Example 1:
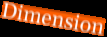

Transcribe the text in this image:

Dimension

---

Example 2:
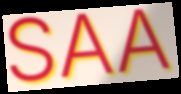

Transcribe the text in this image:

SAA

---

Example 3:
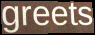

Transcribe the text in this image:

greets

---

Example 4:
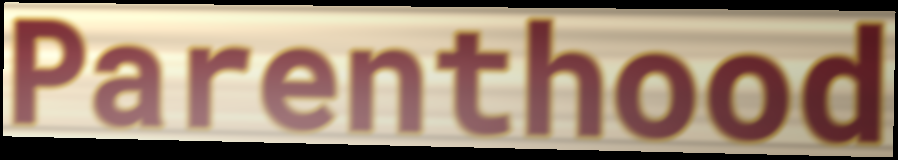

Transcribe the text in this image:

Parenthood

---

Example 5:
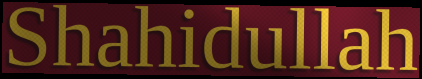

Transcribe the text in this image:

Shahidullah